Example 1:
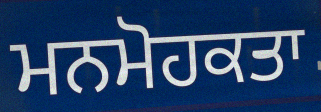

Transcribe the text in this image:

ਮਨਮੋਹਕਤਾ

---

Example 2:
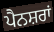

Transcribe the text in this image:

ਪੈਨਸ਼ਰਾਂ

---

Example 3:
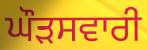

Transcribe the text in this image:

ਘੌੜਸਵਾਰੀ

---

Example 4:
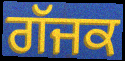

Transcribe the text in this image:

ਗੱਜਕ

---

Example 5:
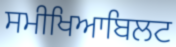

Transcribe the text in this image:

ਸਮੀਖਿਆਬਿਲਟ